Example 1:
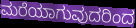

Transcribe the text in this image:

ಮರೆಯಾಗುವುದರಿಂದ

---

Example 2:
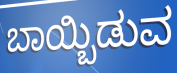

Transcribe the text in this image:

ಬಾಯ್ಬಿಡುವ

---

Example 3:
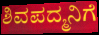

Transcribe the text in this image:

ಶಿವಪದ್ಮನಿಗೆ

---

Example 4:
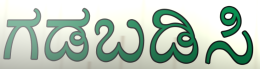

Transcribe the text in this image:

ಗಡಬಡಿಸಿ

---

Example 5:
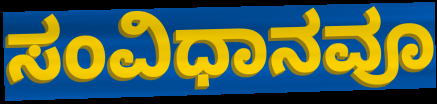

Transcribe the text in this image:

ಸಂವಿಧಾನವೂ